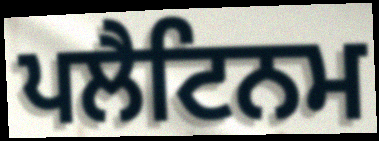
ਪਲੈਟਿਨਮ